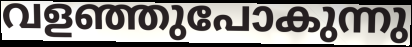
വളഞ്ഞുപോകുന്നു